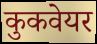
कुकवेयर